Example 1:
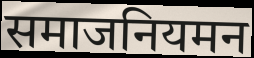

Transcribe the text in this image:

समाजनियमन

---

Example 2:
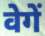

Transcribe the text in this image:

वेगें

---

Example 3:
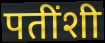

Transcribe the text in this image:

पतींशी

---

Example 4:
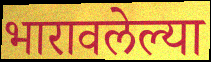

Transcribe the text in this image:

भारावलेल्या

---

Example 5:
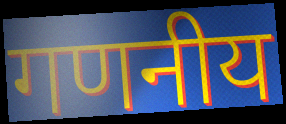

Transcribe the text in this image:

गणनीय